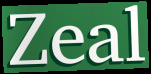
Zeal